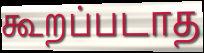
கூறப்படாத